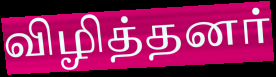
விழித்தனர்